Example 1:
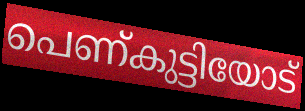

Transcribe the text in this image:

പെണ്കുട്ടിയോട്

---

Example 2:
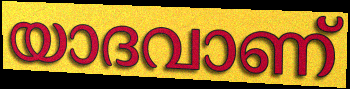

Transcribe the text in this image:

യാദവാണ്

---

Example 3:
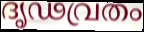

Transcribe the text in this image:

ദൃഢവ്രതം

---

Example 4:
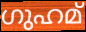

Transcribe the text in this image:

ഗുഹമ്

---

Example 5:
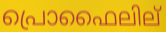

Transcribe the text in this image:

പ്രൊഫൈലില്